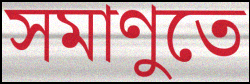
সমাণুতে